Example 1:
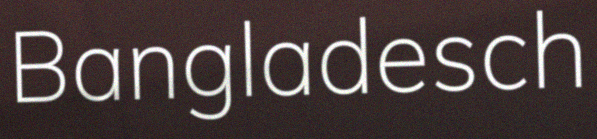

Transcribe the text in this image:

Bangladesch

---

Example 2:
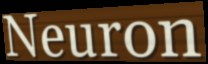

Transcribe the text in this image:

Neuron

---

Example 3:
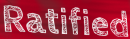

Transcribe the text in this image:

Ratified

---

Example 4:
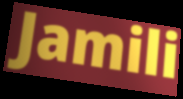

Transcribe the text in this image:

Jamili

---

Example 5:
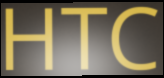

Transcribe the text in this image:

HTC